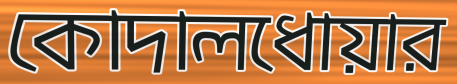
কোদালধোয়ার